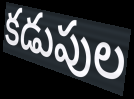
కడుపుల